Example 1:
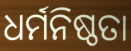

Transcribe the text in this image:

ଧର୍ମନିଷ୍ଠତା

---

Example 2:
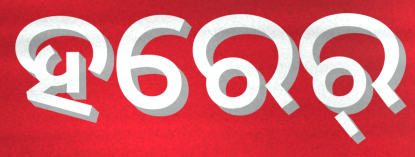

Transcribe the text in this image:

ହରେର୍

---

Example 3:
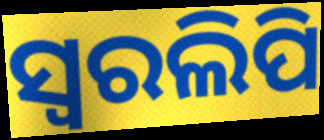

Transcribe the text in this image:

ସ୍ଵରଲିପି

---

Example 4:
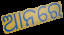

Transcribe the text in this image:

ଆନରେ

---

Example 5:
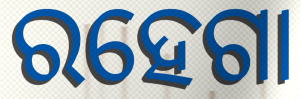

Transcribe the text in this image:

ରହେଗା